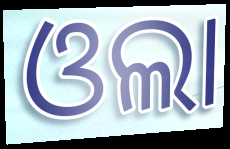
ଓଲା